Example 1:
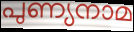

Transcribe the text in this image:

പുണ്യനാമ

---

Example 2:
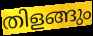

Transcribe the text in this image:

തിളങ്ങും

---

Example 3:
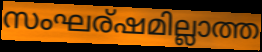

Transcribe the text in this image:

സംഘര്ഷമില്ലാത്ത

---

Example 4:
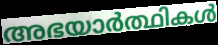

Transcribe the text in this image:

അഭയാർത്ഥികൾ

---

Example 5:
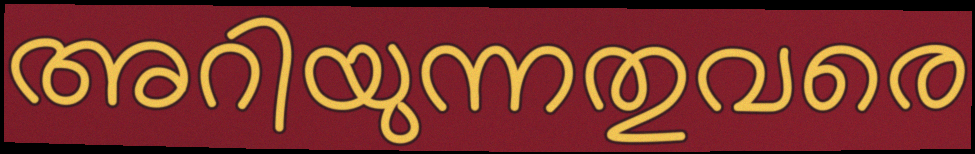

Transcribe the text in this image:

അറിയുന്നതുവരെ